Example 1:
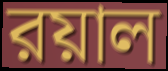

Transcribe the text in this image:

রয়াল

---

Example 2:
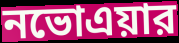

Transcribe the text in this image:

নভোএয়ার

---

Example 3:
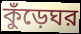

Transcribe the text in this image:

কুঁড়েঘর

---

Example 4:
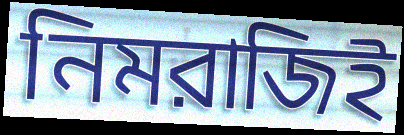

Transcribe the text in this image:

নিমরাজিই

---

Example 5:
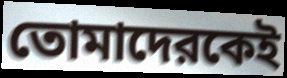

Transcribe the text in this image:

তোমাদেরকেই